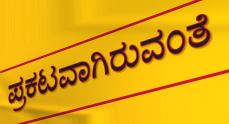
ಪ್ರಕಟವಾಗಿರುವಂತೆ